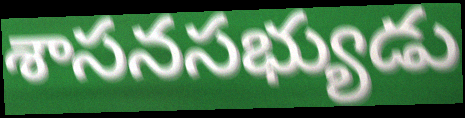
శాసనసభ్యుడు